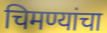
चिमण्यांचा